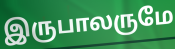
இருபாலருமே